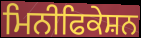
ਮਿਨੀਫਿਕੇਸ਼ਨ